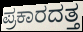
ಪ್ರಕಾರದತ್ತ